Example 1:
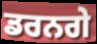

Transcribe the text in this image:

ਡਰਨਗੇ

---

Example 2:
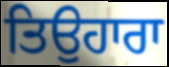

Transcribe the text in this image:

ਤਿਉਹਾਰਾ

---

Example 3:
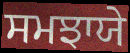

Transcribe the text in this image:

ਸਮਝਾਯੇ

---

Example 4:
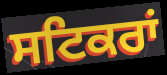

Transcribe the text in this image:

ਸਟਿਕਰਾਂ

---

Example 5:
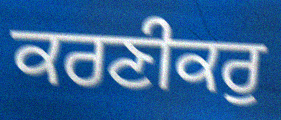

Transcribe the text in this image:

ਕਰਣੀਕਰੁ